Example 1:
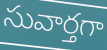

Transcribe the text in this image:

సువార్తగా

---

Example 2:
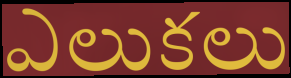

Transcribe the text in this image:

ఎలుకలు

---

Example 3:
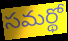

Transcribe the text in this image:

సమర్థో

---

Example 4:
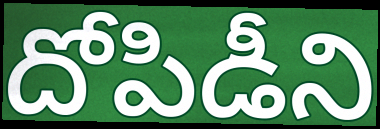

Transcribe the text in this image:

దోపిడీని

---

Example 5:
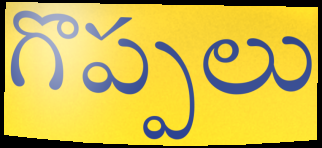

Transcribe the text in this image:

గొప్పలు